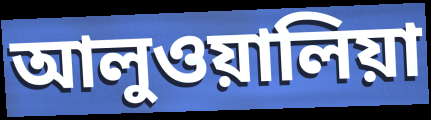
আলুওয়ালিয়া